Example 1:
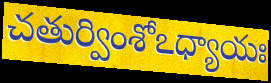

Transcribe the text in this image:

చతుర్వింశోఽధ్యాయః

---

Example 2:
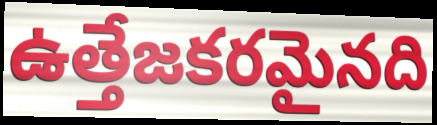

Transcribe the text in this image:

ఉత్తేజకరమైనది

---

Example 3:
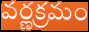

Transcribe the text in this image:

వర్ణక్రమం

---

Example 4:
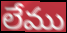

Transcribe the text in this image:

లేము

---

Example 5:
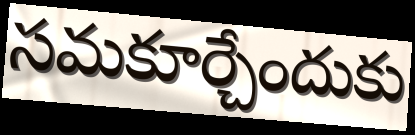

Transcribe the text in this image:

సమకూర్చేందుకు